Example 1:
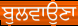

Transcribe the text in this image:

ਬੁਲਵਾਉਣਾ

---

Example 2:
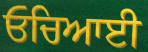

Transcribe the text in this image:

ਓਚਿਆਈ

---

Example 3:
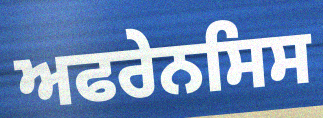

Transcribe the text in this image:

ਅਫਰੇਨਸਿਸ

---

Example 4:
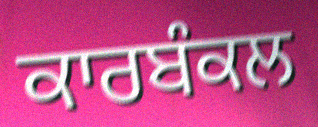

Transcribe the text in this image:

ਕਾਰਬੰਕਲ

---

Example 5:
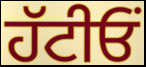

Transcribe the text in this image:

ਹੱਟੀਓਂ